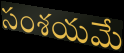
సంశయమే